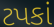
ટપકાં